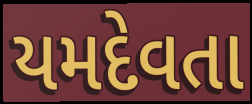
યમદેવતા